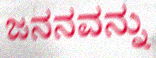
ಜನನವನ್ನು